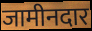
जामीनदार